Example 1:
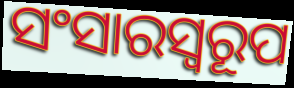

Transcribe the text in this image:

ସଂସାରସ୍ବରୂପ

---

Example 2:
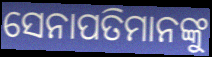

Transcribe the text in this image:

ସେନାପତିମାନଙ୍କୁ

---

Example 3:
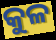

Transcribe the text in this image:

କୁଳ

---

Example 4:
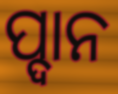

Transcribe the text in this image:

ପ୍ଦାନ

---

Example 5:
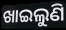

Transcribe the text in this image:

ଖାଇଲୁଣି